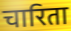
चारिता